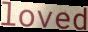
loved